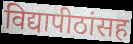
विद्यापीठांसह